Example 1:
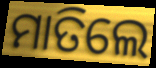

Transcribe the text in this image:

ମାତିଲେ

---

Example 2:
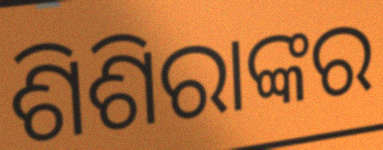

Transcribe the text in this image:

ଶିଶିରାଙ୍କର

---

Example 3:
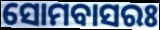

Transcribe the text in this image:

ସୋମବାସରଃ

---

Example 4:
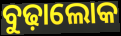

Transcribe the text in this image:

ବୁଢ଼ାଲୋକ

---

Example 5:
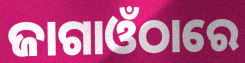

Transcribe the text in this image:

ଜାଗାଓଁଠାରେ